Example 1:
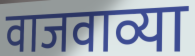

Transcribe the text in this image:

वाजवाव्या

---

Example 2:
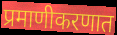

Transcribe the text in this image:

प्रमाणीकरणात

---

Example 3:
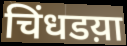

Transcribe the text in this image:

चिंधडय़ा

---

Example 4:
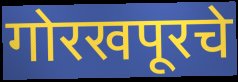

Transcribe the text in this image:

गोरखपूरचे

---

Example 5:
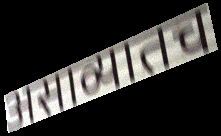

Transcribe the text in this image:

असाव्यातच